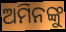
ଅମିନଙ୍କୁ